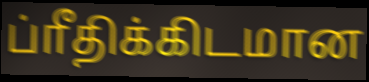
ப்ரீதிக்கிடமான